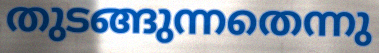
തുടങ്ങുന്നതെന്നു